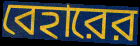
বেহারের